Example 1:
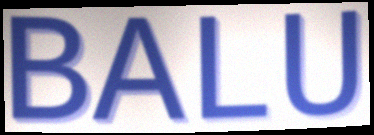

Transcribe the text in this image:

BALU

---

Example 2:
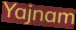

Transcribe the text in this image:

Yajnam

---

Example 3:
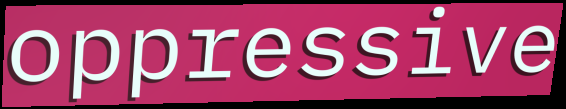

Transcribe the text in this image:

oppressive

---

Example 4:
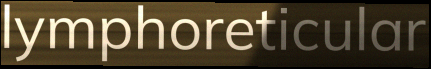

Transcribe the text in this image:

lymphoreticular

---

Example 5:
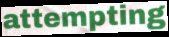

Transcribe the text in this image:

attempting